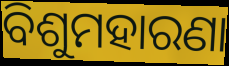
ବିଶୁମହାରଣା